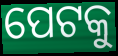
ପେଟକୁ